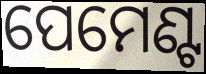
ପେମେଣ୍ଟ